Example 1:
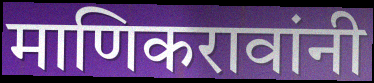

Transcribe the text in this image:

माणिकरावांनी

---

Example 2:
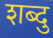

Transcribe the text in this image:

शब्दु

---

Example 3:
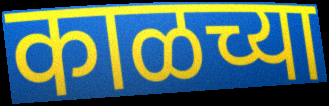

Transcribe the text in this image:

काळच्या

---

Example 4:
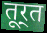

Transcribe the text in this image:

तूर्त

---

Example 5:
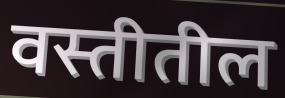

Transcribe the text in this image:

वस्तीतील